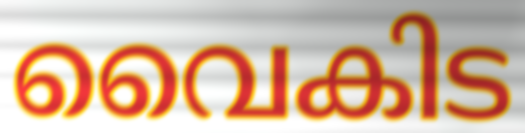
വൈകിട